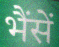
भैंसें